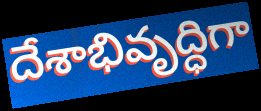
దేశాభివృద్ధిగా